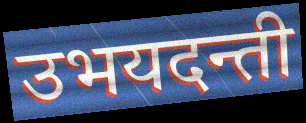
उभयदन्ती